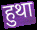
हुथा